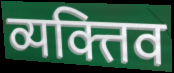
व्यक्तिव